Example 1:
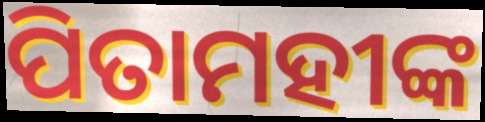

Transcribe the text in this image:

ପିତାମହୀଙ୍କ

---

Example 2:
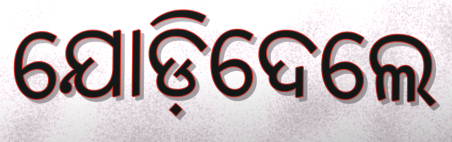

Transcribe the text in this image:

ଯୋଡ଼ିଦେଲେ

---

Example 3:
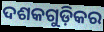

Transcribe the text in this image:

ଦଶକଗୁଡ଼ିକର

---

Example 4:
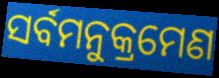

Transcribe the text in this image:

ସର୍ବମନୁକ୍ରମେଣ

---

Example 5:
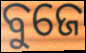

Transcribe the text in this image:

ବୁଜେ